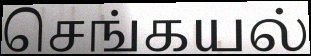
செங்கயல்